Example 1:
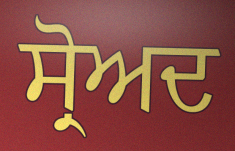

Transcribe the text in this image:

ਸ੍ਰੋਅਦ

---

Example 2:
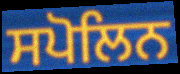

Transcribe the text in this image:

ਸਪੋਲਿਨ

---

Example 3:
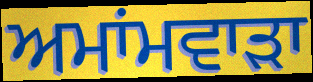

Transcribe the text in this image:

ਅਮਾਂਮਵਾੜਾ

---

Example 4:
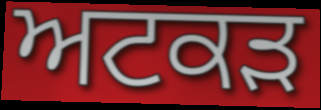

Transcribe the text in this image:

ਅਟਕੜ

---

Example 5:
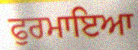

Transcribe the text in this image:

ਫੁਰਮਾਇਆ